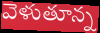
వెళుతూన్న